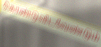
கொண்டுவிடவேண்டும்